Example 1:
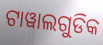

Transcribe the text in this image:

ଟାୱାଲଗୁଡିକ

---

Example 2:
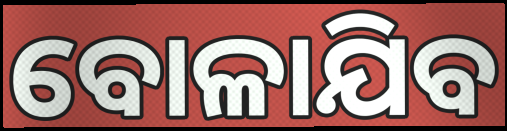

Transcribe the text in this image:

ବୋଳାଯିବ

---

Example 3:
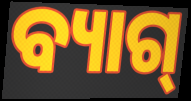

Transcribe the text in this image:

ବ୍ୟାଗ୍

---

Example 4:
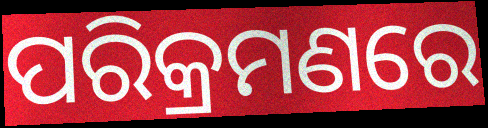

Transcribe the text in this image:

ପରିକ୍ରମଣରେ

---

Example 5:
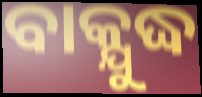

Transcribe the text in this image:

ବାକ୍ଯୁଦ୍ଧ